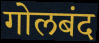
गोलबंद